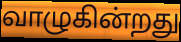
வாழுகின்றது